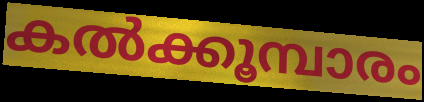
കൽക്കൂമ്പാരം